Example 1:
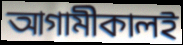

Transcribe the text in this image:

আগামীকালই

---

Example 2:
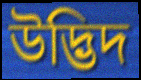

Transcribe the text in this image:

উদ্ভিদ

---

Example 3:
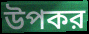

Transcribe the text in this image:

উপকর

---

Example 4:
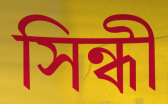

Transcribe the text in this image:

সিন্ধী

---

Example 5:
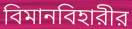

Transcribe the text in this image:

বিমানবিহারীর